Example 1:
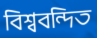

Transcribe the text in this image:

বিশ্ববন্দিত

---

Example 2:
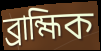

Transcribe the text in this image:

ব্ৰাহ্মিক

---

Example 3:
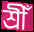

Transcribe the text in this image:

শ্ৰীঁ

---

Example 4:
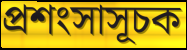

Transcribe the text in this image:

প্ৰশংসাসূচক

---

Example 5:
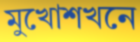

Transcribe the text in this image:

মুখোশখনে